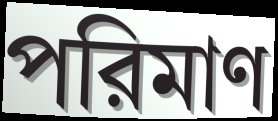
পরিমাণ